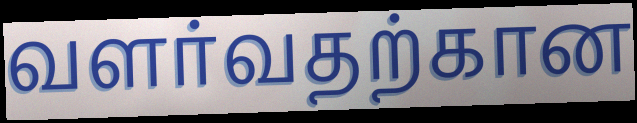
வளர்வதற்கான